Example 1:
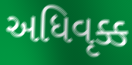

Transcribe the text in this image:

અધિવૃક્ક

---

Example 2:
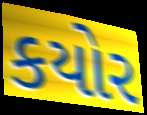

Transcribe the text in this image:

કયોર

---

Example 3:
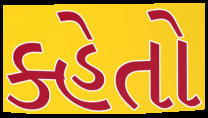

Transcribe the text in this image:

ક્હેતો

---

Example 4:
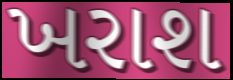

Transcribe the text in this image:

ખરાશ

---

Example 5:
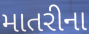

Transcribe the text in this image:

માતરીના